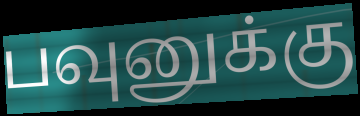
பவுனுக்கு